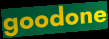
goodone